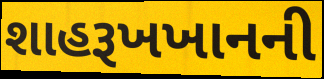
શાહરૂખખાનની